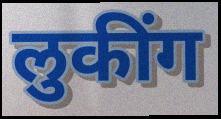
लुकींग